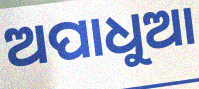
ଅପାଧୁଆ